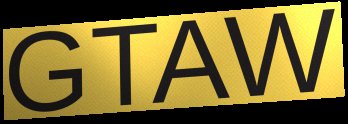
GTAW